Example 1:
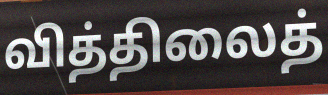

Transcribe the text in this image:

வித்திலைத்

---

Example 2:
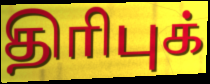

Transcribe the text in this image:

திரிபுக்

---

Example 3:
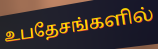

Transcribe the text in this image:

உபதேசங்களில்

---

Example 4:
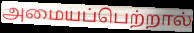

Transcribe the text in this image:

அமையப்பெற்றால்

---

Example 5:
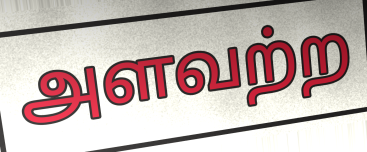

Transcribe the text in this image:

அளவற்ற